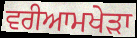
ਵਰੀਆਮਖੇੜਾ